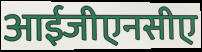
आईजीएनसीए